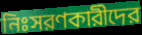
নিঃসরণকারীদের